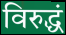
विरुद्धं